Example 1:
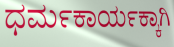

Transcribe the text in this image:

ಧರ್ಮಕಾರ್ಯಕ್ಕಾಗಿ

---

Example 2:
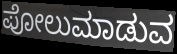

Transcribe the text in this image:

ಪೋಲುಮಾಡುವ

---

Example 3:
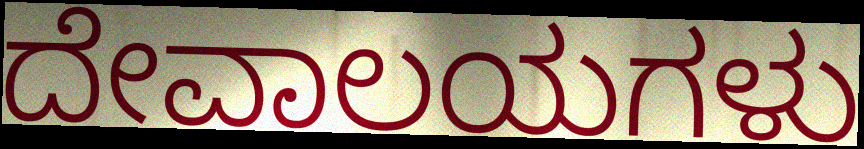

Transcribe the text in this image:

ದೇವಾಲಯಗಳು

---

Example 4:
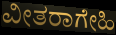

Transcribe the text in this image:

ವೀತರಾಗೇಹಿ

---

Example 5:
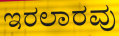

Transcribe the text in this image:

ಇರಲಾರವು